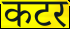
कटर